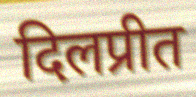
दिलप्रीत